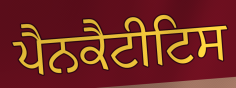
ਪੈਨਕੈਟੀਟਿਸ